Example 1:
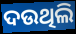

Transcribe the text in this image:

ଦଉଥିଲି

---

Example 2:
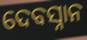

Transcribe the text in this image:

ଦେବସ୍ନାନ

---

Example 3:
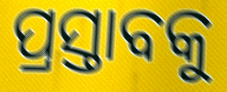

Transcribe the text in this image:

ପ୍ରସ୍ତାବକୁ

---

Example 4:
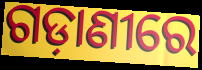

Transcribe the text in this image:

ଗଡ଼ାଣୀରେ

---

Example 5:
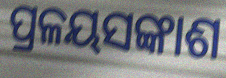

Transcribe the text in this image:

ପ୍ରଳୟସଙ୍କାଶ